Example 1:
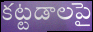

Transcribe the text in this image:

కట్టడాలపై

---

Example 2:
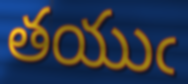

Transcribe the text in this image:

తయుఁ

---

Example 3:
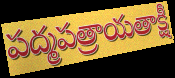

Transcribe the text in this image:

పద్మపత్రాయతాక్షీ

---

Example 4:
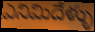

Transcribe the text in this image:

ఎనిమిదేళ్ళు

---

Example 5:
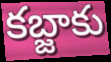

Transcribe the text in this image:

కబ్జాకు